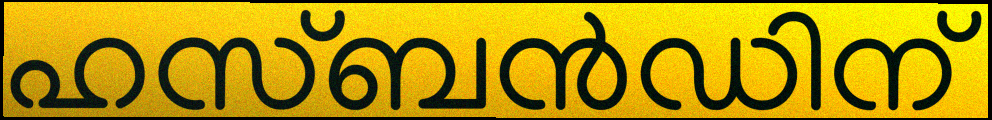
ഹസ്ബൻഡിന്